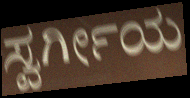
ಸ್ವರ್ಗೀಯ